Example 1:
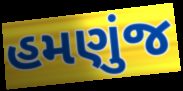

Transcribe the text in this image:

હમણુંજ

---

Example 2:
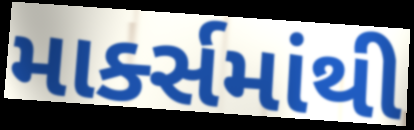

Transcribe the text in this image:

માર્ક્સમાંથી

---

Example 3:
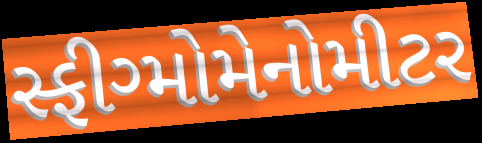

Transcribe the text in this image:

સ્ફીગ્મોમેનોમીટર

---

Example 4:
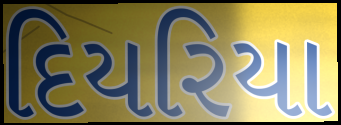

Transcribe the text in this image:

દિયરિયા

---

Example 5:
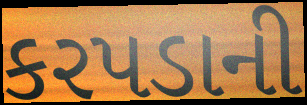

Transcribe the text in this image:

કરપડાની